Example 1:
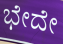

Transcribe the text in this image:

ಭೇದೇ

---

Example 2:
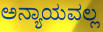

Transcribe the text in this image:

ಅನ್ಯಾಯವಲ್ಲ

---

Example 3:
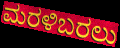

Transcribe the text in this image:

ಮರಳಿಬರಲು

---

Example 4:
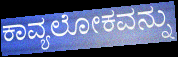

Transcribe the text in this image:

ಕಾವ್ಯಲೋಕವನ್ನು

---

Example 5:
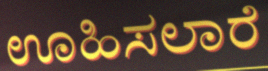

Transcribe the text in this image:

ಊಹಿಸಲಾರೆ